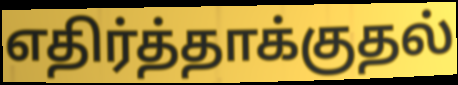
எதிர்த்தாக்குதல்